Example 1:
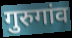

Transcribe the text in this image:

गुरुगांव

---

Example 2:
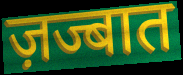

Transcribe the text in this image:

ज़ज्बात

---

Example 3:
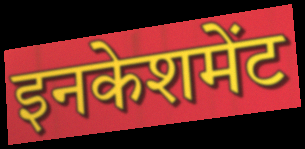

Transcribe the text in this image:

इनकेशमेंट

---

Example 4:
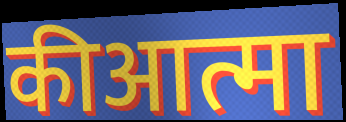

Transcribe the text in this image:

कीआत्मा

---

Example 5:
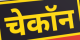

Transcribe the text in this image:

चेकॉन